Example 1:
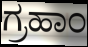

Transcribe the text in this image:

ಗ್ರಹಾಂ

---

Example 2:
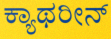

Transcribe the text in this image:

ಕ್ಯಾಥರೀನ್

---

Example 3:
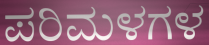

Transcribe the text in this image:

ಪರಿಮಳಗಳ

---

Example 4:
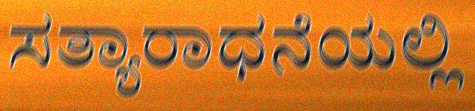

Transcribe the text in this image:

ಸತ್ಯಾರಾಧನೆಯಲ್ಲಿ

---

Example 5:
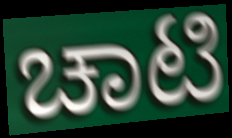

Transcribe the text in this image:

ಚಾಟಿ